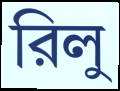
রিলু